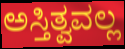
ಅಸ್ತಿತ್ವವಲ್ಲ